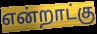
என்றாட்கு